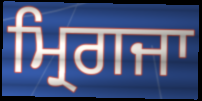
ਮ੍ਰਿਗਜਾ